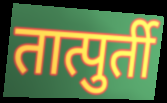
तात्पुर्ती